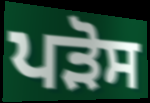
ਪੜੋਸ